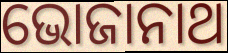
ଭୋଜାନାଥ